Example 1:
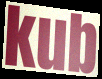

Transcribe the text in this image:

kub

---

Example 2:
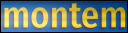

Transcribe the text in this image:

montem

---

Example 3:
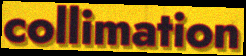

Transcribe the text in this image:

collimation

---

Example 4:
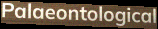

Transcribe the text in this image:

Palaeontological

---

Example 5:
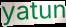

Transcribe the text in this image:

yatun